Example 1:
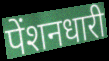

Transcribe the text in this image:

पेंशनधारी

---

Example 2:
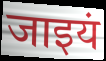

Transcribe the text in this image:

जाइयं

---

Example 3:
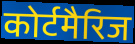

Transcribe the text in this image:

कोर्टमैरिज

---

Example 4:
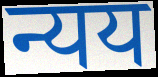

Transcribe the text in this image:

न्यय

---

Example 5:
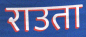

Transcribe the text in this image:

राउता